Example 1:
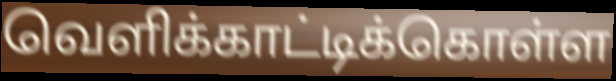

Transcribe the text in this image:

வெளிக்காட்டிக்கொள்ள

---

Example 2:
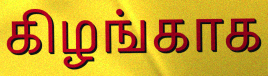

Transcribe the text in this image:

கிழங்காக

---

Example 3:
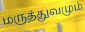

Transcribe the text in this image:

மருத்துவமும்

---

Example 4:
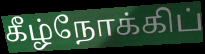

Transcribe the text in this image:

கீழ்நோக்கிப்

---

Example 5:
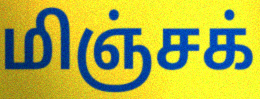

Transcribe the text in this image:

மிஞ்சக்